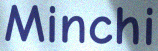
Minchi